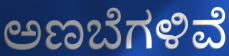
ಅಣಬೆಗಳಿವೆ